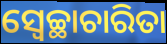
ସ୍ୱେଚ୍ଛାଚାରିତା